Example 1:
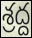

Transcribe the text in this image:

శ్రద్ద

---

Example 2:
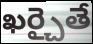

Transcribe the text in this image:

ఖర్చైతే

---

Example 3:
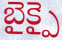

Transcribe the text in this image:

బైక్పై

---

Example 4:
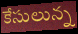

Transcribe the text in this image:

కేసులున్న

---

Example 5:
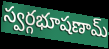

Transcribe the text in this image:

స్వర్గభూషణామ్